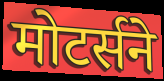
मोटर्सने